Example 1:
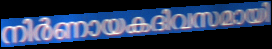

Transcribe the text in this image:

നിർണായകദിവസമായി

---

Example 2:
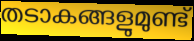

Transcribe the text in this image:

തടാകങ്ങളുമുണ്ട്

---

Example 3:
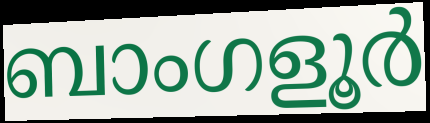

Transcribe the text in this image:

ബാംഗളൂർ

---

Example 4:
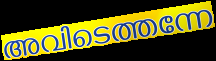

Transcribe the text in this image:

അവിടെത്തന്നേ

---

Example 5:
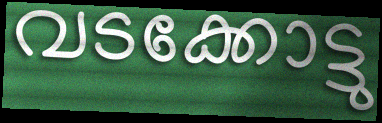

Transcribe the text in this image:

വടക്കോട്ടു